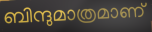
ബിന്ദുമാത്രമാണ്